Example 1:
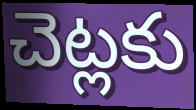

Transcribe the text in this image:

చెట్లకు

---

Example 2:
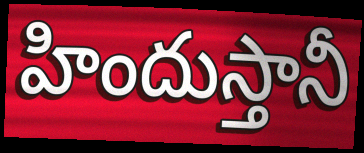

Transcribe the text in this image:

హిందుస్తానీ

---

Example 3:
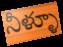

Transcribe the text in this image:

నీళ్ళూ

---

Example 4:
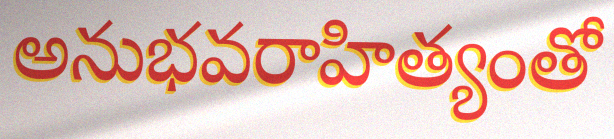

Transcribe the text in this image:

అనుభవరాహిత్యంతో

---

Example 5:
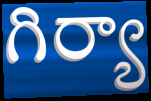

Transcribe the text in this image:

గిర్యా